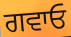
ਗਵਾਓ